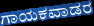
ಗಾಯಕವಾಡರ